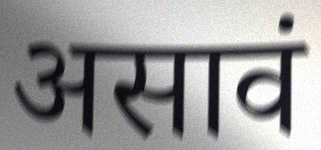
असावं